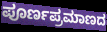
ಪೂರ್ಣಪ್ರಮಾಣದ